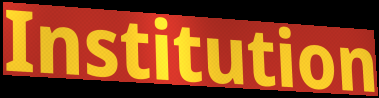
Institution